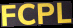
FCPL